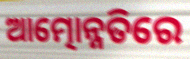
ଆତ୍ମୋନ୍ନତିରେ